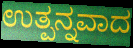
ಉತ್ಪನ್ನವಾದ